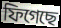
ফিগেছে